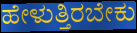
ಹೇಳುತ್ತಿರಬೇಕು